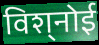
विश्नोई